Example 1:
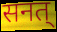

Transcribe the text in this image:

सनत्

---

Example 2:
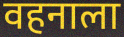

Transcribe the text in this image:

वहनाला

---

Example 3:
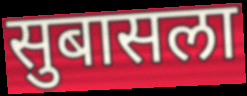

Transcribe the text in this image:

सुबासला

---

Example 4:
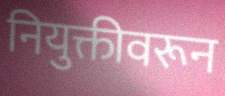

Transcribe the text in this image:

नियुक्तीवरून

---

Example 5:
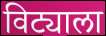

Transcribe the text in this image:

विट्याला